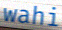
wahi